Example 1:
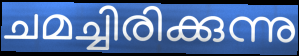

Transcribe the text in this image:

ചമച്ചിരിക്കുന്നു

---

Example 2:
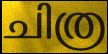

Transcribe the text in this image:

ചിത്ര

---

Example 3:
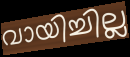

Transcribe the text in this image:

വായിച്ചില്ല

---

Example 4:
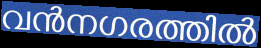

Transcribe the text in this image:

വൻനഗരത്തിൽ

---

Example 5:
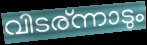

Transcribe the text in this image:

വിടര്ന്നാടും